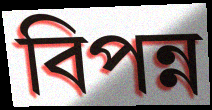
বিপন্ন